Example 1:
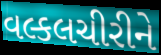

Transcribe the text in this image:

વલ્કલચીરીને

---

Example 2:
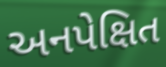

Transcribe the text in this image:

અનપેક્ષિત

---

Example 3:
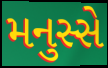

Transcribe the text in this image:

મનુસ્સે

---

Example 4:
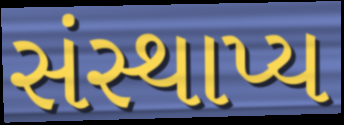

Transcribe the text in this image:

સંસ્થાપ્ય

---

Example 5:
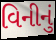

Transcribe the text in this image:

વિનીનું